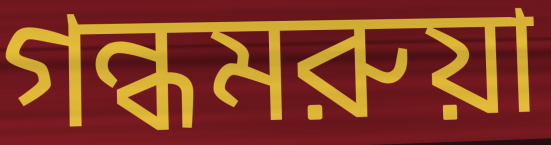
গন্ধমরুয়া